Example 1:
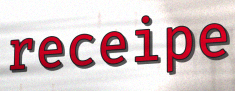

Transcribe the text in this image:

receipe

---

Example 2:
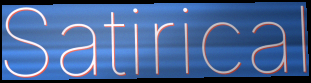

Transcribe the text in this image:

Satirical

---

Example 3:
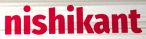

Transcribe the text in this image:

nishikant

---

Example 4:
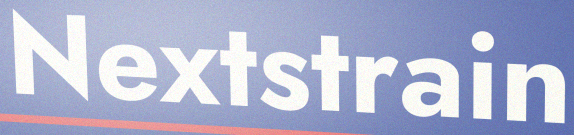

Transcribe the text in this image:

Nextstrain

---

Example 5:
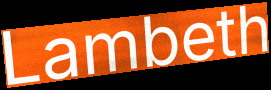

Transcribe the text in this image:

Lambeth